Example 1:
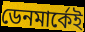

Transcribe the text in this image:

ডেনমার্কেই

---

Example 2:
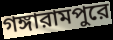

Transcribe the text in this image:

গঙ্গারামপুরে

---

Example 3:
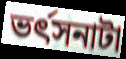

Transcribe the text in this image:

ভর্ৎসনাটা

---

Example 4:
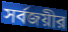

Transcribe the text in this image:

সর্বজয়ীর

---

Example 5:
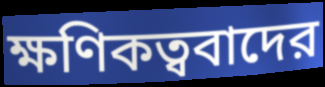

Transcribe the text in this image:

ক্ষণিকত্ববাদের